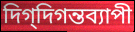
দিগ্‌দিগন্তব্যাপী